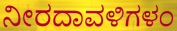
ನೀರದಾವಳಿಗಳಂ